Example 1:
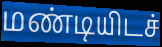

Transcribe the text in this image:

மண்டியிடச்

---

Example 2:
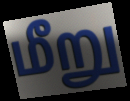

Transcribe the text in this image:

மீறு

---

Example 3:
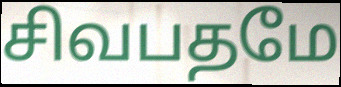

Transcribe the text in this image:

சிவபதமே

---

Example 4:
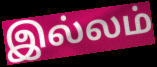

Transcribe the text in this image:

இல்லம்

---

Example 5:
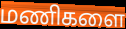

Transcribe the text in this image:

மணிகளை